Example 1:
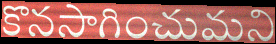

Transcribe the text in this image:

కొనసాగించుమని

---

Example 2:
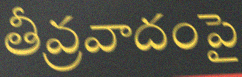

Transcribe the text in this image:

తీవ్రవాదంపై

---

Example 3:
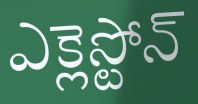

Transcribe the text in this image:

ఎక్లెస్టోన్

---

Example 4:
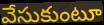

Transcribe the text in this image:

వేసుకుంటూ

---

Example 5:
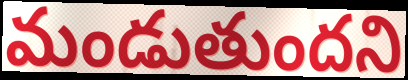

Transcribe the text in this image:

మండుతుందని